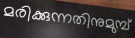
മരിക്കുന്നതിനുമുമ്പ്